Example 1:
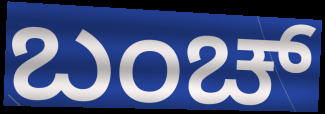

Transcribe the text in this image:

ಬಂಚ್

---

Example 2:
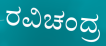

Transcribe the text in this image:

ರವಿಚಂದ್ರ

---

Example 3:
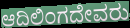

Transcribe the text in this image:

ಆದಿಲಿಂಗದೇವರು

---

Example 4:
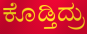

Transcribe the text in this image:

ಕೊಡ್ತಿದ್ರು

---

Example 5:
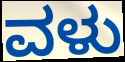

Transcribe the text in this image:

ವಳು